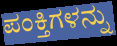
ಪಂಕ್ತಿಗಳನ್ನು